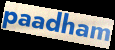
paadham